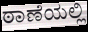
ಠಾಣೆಯಲ್ಲಿ